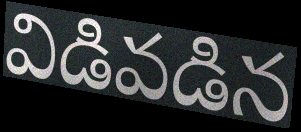
విడివడిన